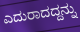
ಎದುರಾದದ್ದನ್ನು